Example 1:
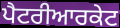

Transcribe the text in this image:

ਪੈਟਰੀਆਰਕੇਟ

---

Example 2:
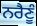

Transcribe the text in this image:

ਨਰੈਣੂੰ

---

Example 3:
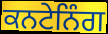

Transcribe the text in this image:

ਕਨਟੇਨਿੰਗ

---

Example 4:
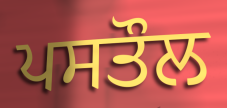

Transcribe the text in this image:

ਪਸਤੌਲ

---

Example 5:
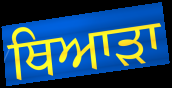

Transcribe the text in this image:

ਥਿਆੜਾ